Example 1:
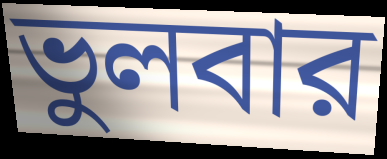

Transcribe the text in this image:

ভুলবার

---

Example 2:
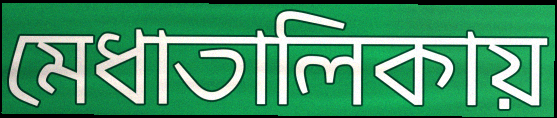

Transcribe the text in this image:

মেধাতালিকায়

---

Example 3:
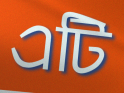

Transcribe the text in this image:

এটি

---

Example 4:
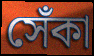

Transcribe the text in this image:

সেঁকা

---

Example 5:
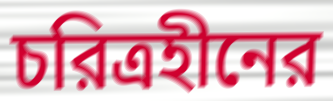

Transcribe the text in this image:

চরিত্রহীনের